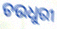
ଚଉଧୁରୀ